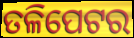
ତଳିପେଟର